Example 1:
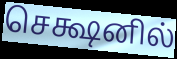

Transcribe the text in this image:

செக்ஷனில்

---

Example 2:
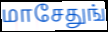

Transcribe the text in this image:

மாசேதுங்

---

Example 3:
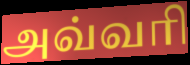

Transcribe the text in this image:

அவ்வரி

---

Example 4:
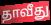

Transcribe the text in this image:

தாவீது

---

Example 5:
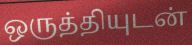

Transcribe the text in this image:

ஒருத்தியுடன்